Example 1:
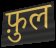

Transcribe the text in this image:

फ़ुल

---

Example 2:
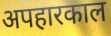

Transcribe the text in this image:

अपहारकाल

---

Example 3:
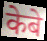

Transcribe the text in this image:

केबे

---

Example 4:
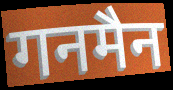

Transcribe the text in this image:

गनमैन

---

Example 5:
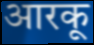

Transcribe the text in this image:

आरकू